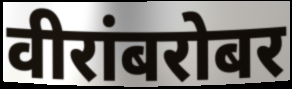
वीरांबरोबर